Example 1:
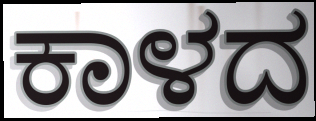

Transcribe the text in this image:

ಕಾಳದ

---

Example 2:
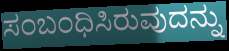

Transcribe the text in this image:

ಸಂಬಂಧಿಸಿರುವುದನ್ನು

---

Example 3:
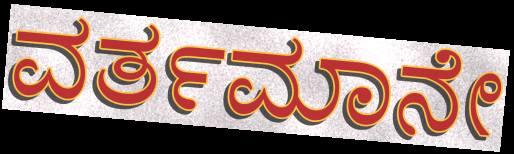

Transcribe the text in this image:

ವರ್ತಮಾನೇ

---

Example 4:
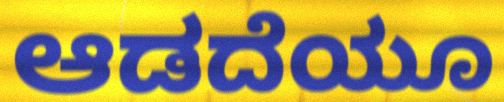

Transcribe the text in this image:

ಆಡದೆಯೂ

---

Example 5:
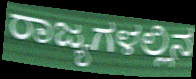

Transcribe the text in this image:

ರಾಜ್ಯಗಳಲ್ಲಿನ